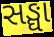
સઙ્ઘા